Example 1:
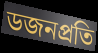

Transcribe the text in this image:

ডজনপ্রতি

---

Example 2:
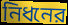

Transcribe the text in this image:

নিধনের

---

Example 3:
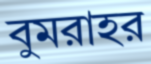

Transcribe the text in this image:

বুমরাহর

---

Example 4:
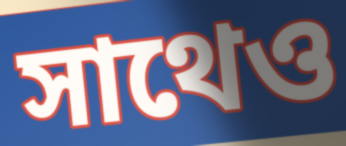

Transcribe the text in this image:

সাথেও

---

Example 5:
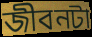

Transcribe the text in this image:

জীবনটা